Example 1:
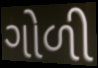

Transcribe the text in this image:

ગોળી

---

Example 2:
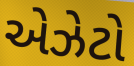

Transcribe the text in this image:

એઝેટો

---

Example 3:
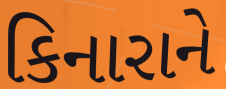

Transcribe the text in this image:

કિનારાને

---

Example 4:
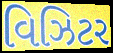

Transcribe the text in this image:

વિઝિટર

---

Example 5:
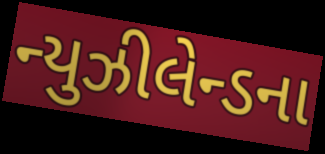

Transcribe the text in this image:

ન્યુઝીલેન્ડના